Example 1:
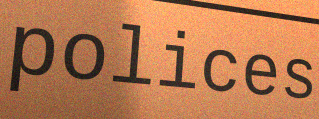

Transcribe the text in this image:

polices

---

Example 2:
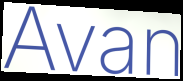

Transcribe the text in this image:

Avan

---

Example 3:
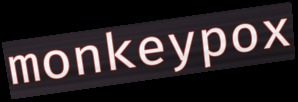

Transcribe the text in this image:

monkeypox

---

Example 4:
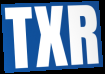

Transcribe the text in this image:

TXR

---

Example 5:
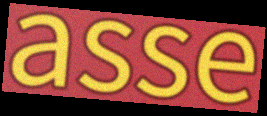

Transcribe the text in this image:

asse